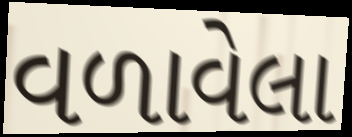
વળાવેલા